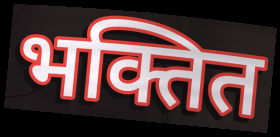
भक्तित